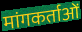
मांगकर्ताओं